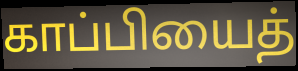
காப்பியைத்